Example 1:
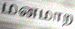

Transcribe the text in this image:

மனமாற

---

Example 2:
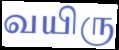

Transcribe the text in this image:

வயிரு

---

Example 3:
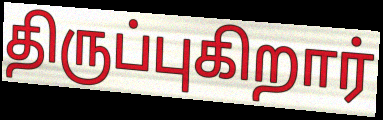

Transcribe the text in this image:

திருப்புகிறார்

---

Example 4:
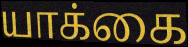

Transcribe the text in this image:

யாக்கை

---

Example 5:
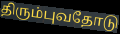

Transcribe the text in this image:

திரும்புவதோடு